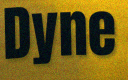
Dyne